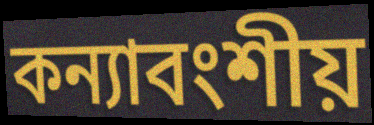
কন্যাবংশীয়